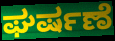
ಘರ್ಷಣೆ